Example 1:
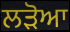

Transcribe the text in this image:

ਲੜੋਆ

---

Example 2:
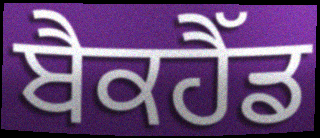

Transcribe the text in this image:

ਬੈਕਹੈੱਡ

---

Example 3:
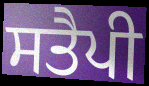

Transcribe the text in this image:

ਸਤੈਪੀ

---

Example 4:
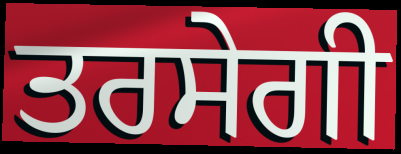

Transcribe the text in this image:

ਤਰਸੇਗੀ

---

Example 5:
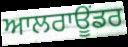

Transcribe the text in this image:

ਆਲਰਾਊਂਡਰ